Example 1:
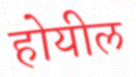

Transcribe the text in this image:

होयील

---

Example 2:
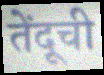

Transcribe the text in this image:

तेंदूची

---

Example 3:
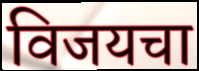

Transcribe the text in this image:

विजयचा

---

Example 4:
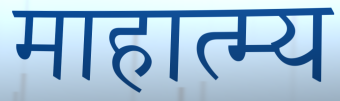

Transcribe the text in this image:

माहात्म्य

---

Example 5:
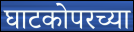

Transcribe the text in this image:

घाटकोपरच्या